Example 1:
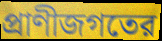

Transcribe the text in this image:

প্রাণীজগতের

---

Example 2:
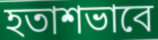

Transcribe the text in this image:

হতাশভাবে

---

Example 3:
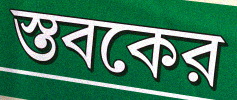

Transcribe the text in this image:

স্তবকের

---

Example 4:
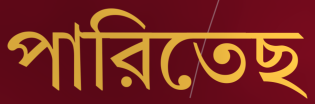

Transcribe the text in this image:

পারিতেছ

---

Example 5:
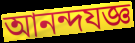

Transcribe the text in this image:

আনন্দযজ্ঞ